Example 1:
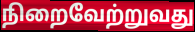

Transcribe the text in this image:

நிறைவேற்றுவது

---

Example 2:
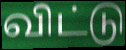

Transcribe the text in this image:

விட்டு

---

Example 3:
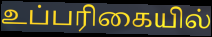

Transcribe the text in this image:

உப்பரிகையில்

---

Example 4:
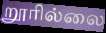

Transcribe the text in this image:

றூரில்லை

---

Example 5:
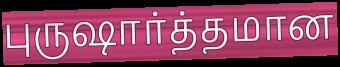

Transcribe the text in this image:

புருஷார்த்தமான